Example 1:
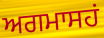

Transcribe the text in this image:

ਅਗਮਾਸਹਂ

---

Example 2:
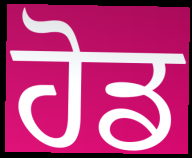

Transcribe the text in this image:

ਹੋਡ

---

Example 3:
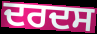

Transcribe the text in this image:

ਦਰਦਸ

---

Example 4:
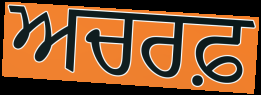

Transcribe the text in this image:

ਅਚਰਫ਼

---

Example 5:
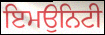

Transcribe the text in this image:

ਇਮਉਨਿਟੀ